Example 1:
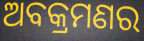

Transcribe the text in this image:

ଅବକ୍ରମଣର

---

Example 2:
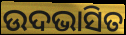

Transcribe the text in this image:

ଉଦଭାସିତ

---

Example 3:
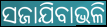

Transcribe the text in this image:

ସଜାଯିବାଭଳି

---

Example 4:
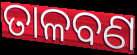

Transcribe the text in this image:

ତାଳବଣ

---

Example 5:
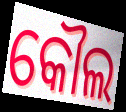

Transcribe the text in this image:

କୌଲ